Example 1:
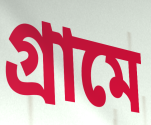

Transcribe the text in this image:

গ্রামে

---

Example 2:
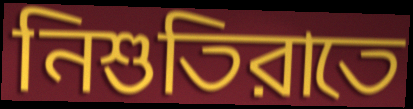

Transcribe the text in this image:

নিশুতিরাতে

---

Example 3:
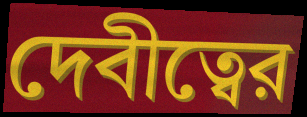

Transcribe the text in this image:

দেবীত্বের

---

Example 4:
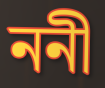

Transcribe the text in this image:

ননী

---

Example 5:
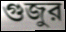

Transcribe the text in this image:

গুজুর